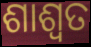
ଶାଶ୍ୱତ